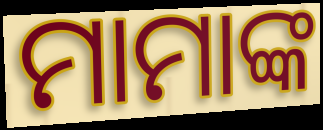
ମାମାଙ୍କ